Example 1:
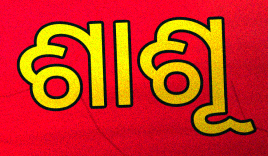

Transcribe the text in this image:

ଶାଶୂ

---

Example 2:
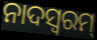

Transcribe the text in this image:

ନାଦସ୍ଵରମ୍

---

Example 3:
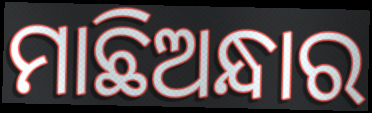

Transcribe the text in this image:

ମାଛିଅନ୍ଧାର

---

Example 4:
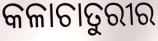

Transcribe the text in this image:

କଳାଚାତୁରୀର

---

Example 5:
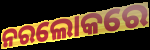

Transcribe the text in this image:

ନରଲୋକରେ